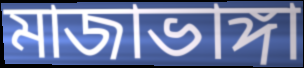
মাজাভাঙ্গা